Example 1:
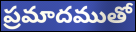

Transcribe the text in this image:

ప్రమాదముతో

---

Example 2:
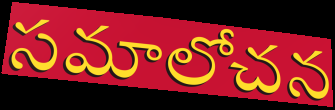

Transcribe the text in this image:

సమాలోచన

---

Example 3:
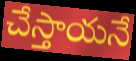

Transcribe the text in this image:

చేస్తాయనే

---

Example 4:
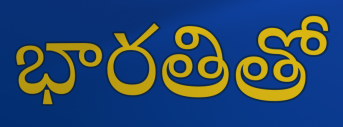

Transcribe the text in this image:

భారతితో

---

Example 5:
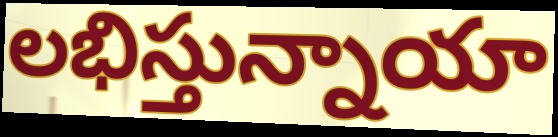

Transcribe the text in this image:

లభిస్తున్నాయా